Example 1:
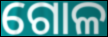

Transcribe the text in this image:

ଗୋଳ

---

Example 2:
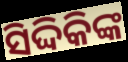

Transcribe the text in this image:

ସିଦ୍ଦିକିଙ୍କ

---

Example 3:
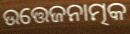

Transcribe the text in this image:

ଉତ୍ତେଜନାତ୍ମକ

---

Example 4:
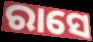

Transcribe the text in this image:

ରାସେ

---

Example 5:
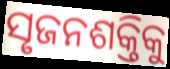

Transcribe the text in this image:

ସୃଜନଶକ୍ତିକୁ